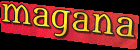
magana